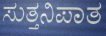
ಸುತ್ತನಿಪಾತ